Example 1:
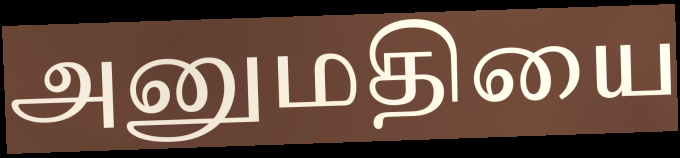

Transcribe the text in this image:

அனுமதியை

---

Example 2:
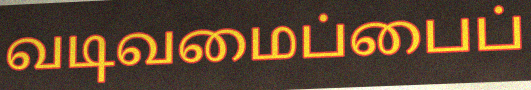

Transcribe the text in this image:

வடிவமைப்பைப்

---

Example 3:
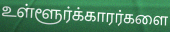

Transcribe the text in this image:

உள்ளூர்க்காரர்களை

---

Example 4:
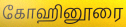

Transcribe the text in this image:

கோஹினூரை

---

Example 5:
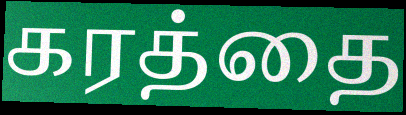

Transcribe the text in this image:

கரத்தை